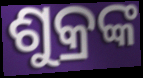
ଶୁକ୍ରଙ୍କ